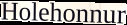
Holehonnur